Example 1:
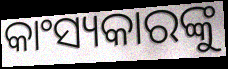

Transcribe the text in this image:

କାଂସ୍ୟକାରଙ୍କୁ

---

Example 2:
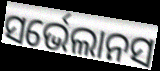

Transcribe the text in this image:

ସର୍ଭେଲାନସ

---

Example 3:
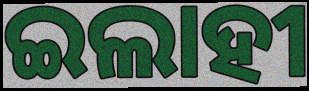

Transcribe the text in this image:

ଇଲାହୀ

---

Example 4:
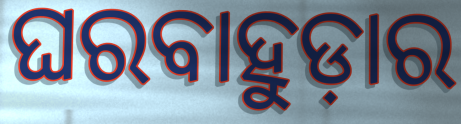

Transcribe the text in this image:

ଘରବାହୁଡ଼ାର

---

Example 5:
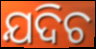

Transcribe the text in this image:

ଯଦିଚ